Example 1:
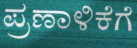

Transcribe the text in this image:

ಪ್ರಣಾಳಿಕೆಗೆ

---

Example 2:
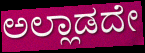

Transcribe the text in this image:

ಅಲ್ಲಾಡದೇ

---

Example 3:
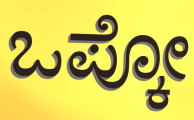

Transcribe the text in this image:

ಒಪ್ಕೋ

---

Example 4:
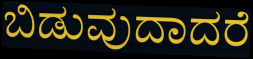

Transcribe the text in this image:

ಬಿಡುವುದಾದರೆ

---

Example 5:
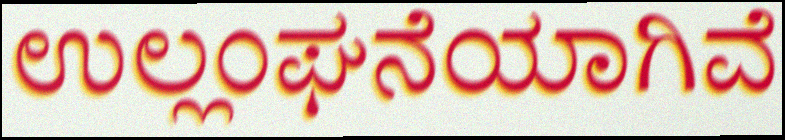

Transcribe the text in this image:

ಉಲ್ಲಂಘನೆಯಾಗಿವೆ